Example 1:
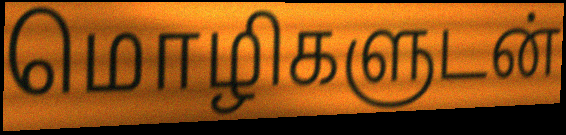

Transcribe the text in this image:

மொழிகளுடன்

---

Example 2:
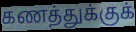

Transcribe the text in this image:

கணத்துக்குக்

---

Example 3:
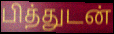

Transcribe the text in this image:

பித்துடன்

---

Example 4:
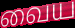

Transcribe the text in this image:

வைய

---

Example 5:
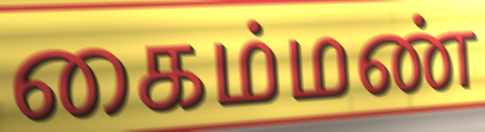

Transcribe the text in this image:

கைம்மண்